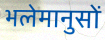
भलेमानुसों